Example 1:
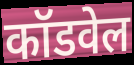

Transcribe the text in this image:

कॉडवेल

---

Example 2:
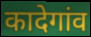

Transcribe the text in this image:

कादेगांव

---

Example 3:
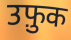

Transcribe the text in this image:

उफ़ुक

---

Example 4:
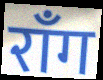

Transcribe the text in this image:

रॉंग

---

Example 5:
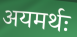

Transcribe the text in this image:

अयमर्थः